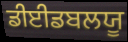
ਡੀਈਡਬਲਯੂ